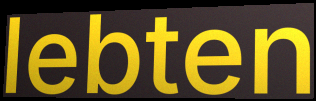
lebten